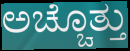
ಅಚ್ಚೊತ್ತು